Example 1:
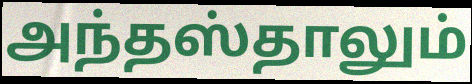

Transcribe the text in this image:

அந்தஸ்தாலும்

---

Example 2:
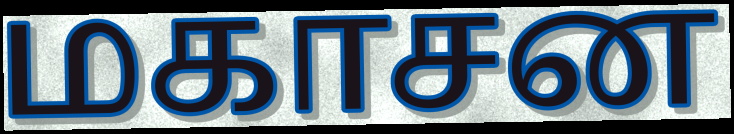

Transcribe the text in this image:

மகாசன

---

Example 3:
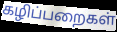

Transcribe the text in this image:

கழிப்பறைகள்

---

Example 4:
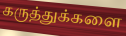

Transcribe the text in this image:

கருத்துக்களை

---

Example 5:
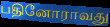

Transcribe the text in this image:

பதினோராவது